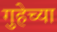
गुहेच्या